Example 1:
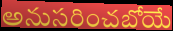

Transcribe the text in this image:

అనుసరించబోయే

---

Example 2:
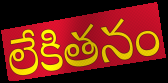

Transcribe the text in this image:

లేకితనం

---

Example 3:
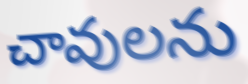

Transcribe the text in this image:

చావులను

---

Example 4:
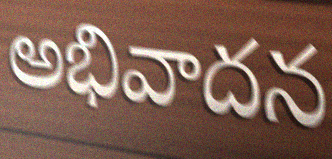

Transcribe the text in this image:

అభివాదన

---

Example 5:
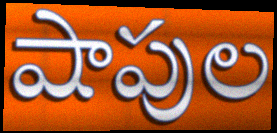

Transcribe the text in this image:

షాపుల